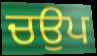
ਚਉਪ